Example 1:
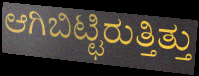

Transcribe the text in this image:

ಆಗಿಬಿಟ್ಟಿರುತ್ತಿತ್ತು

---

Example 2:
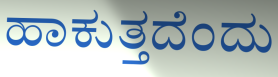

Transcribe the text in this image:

ಹಾಕುತ್ತದೆಂದು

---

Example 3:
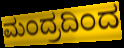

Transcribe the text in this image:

ಮಂದ್ರದಿಂದ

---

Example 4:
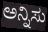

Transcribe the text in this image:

ಅನ್ನಿಸು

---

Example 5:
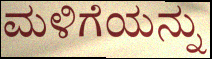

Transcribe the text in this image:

ಮಳಿಗೆಯನ್ನು